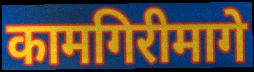
कामगिरीमागे